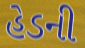
હેડની